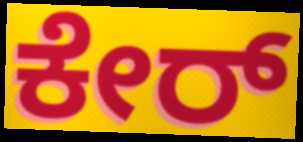
ಕೇರ್